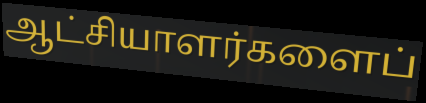
ஆட்சியாளர்களைப்